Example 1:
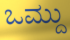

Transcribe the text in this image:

ಒಮ್ದು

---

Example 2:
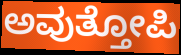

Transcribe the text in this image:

ಅವುತ್ತೋಪಿ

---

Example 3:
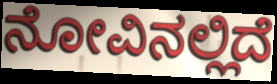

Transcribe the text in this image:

ನೋವಿನಲ್ಲಿದೆ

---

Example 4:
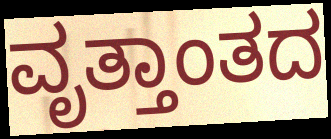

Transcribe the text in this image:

ವೃತ್ತಾಂತದ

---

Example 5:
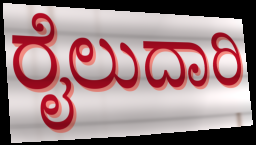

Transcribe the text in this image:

ರೈಲುದಾರಿ